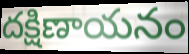
దక్షిణాయనం